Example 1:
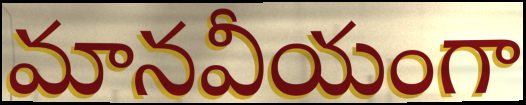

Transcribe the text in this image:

మానవీయంగా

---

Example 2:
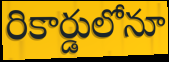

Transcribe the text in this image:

రికార్డులోనూ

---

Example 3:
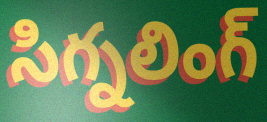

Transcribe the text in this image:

సిగ్నలింగ్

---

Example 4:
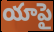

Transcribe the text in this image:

యాపై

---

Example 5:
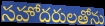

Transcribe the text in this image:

సహోదరులతోను